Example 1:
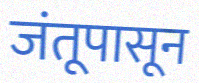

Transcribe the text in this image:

जंतूपासून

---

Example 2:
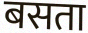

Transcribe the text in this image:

बसता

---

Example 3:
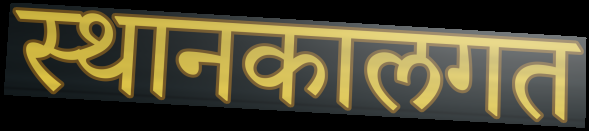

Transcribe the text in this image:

स्थानकालगत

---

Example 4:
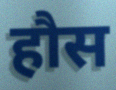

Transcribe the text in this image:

हौस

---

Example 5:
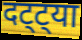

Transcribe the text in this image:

दट्ट्या